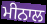
ਮੀਨਾਲ